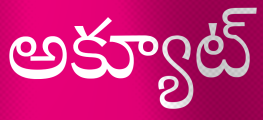
అక్యూట్